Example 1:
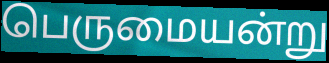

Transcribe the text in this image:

பெருமையன்று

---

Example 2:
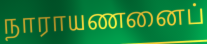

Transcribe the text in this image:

நாராயணனைப்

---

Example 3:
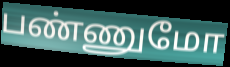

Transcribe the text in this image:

பண்ணுமோ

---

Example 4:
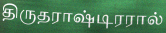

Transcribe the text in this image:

திருதராஷ்டிரரால்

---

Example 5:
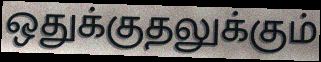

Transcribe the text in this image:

ஒதுக்குதலுக்கும்